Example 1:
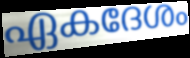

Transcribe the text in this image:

ഏകദേശം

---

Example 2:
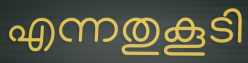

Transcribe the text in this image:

എന്നതുകൂടി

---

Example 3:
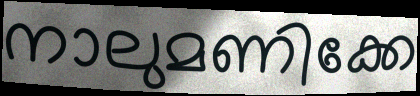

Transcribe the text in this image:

നാലുമണിക്കേ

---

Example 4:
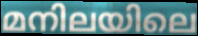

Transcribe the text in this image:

മനിലയിലെ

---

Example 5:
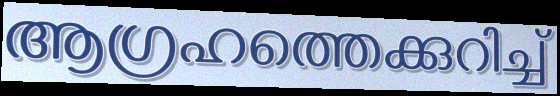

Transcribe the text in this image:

ആഗ്രഹത്തെക്കുറിച്ച്